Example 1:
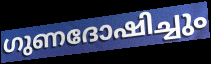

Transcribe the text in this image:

ഗുണദോഷിച്ചും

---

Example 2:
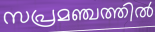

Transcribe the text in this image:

സപ്രമഞ്ചത്തിൽ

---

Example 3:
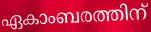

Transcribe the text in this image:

ഏകാംബരത്തിന്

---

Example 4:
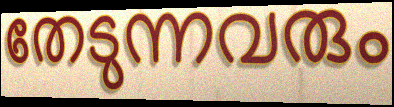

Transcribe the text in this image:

തേടുന്നവരും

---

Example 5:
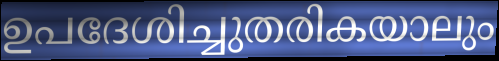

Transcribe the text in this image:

ഉപദേശിച്ചുതരികയാലും